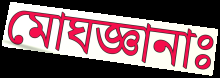
মোঘজ্ঞানাঃ